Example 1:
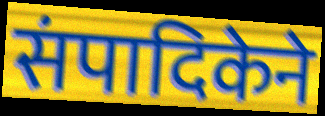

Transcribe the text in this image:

संपादिकेने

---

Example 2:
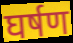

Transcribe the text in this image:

घर्षण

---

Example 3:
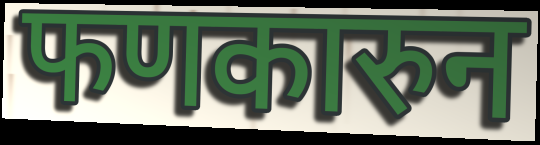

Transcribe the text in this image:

फणकारुन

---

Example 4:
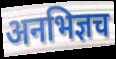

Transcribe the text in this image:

अनभिज्ञच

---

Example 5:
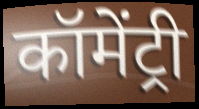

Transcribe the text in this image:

कॉमेंट्री